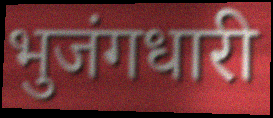
भुजंगधारी